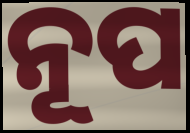
ନୂପ